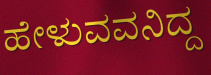
ಹೇಳುವವನಿದ್ದ